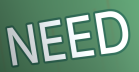
NEED